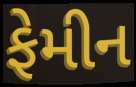
ફેમીન